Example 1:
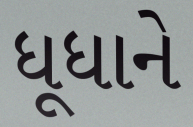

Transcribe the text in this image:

ધૂધાને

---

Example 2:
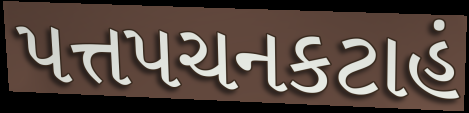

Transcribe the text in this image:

પત્તપચનકટાહં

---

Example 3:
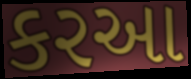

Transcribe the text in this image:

કરઆ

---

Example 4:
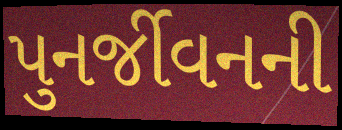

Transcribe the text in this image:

પુનર્જીવનની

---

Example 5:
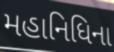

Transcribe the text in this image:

મહાનિધિના